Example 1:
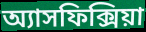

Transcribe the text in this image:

অ্যাসফিক্সিয়া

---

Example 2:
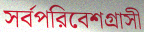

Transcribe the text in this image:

সর্বপরিবেশগ্রাসী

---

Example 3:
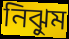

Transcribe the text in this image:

নিঝুম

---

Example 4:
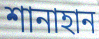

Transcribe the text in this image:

শানাহান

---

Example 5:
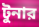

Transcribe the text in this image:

টুনার